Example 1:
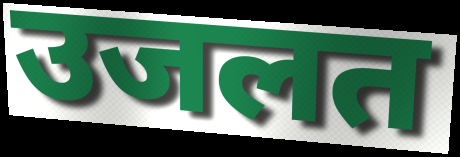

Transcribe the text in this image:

उजलत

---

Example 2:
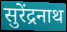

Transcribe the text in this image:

सुरेंद्रनाथ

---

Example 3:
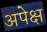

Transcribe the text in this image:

अपेक्ष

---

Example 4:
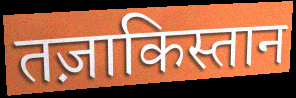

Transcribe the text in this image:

तज़ाकिस्तान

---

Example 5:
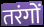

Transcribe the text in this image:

तरंगों